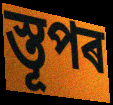
স্তূপৰ